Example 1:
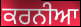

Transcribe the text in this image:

ਕਰਨੀਆ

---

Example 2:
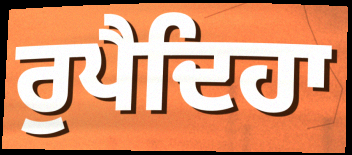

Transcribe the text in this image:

ਰੁਪੈਦਿਹਾ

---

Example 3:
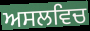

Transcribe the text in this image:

ਅਸਲਵਿਚ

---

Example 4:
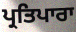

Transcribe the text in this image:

ਪ੍ਰਤਿਪਾਰਾ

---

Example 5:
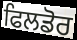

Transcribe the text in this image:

ਫਿਲਡੋਰ